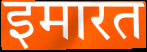
इमारत